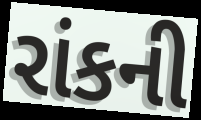
રાંકની